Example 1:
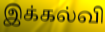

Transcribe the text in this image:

இக்கல்வி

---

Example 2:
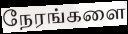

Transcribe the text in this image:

நேரங்களை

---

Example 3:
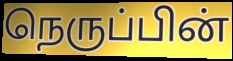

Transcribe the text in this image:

நெருப்பின்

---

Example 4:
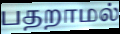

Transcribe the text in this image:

பதறாமல்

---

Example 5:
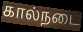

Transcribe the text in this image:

கால்நடை